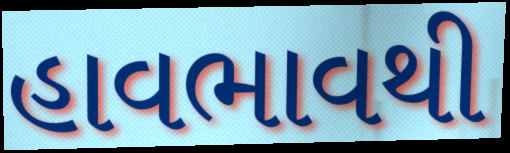
હાવભાવથી